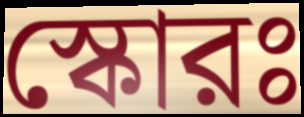
স্কোরঃ